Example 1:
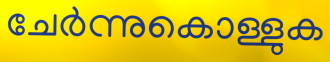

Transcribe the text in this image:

ചേർന്നുകൊള്ളുക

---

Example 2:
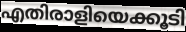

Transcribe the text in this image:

എതിരാളിയെക്കൂടി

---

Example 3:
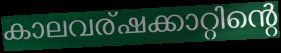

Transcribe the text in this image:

കാലവര്ഷക്കാറ്റിന്റെ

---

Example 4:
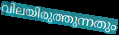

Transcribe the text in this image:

വിലയിരുത്തുന്നതും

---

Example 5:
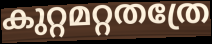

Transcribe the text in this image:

കുറ്റമറ്റതത്രേ